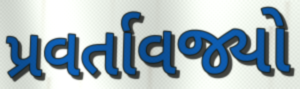
પ્રવર્તાવજ્યો